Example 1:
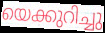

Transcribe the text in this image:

യെക്കുറിച്ചു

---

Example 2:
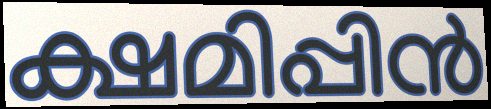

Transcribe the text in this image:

ക്ഷമിപ്പിൻ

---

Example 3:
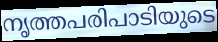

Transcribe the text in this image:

നൃത്തപരിപാടിയുടെ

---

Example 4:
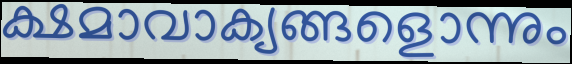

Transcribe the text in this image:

ക്ഷമാവാക്യങ്ങളൊന്നും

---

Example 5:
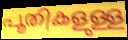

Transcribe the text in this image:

പൂതികളുള്ള